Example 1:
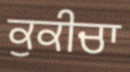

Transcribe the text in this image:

ਕੁਕੀਚਾ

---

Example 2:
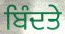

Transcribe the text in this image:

ਬਿੰਦਤੇ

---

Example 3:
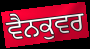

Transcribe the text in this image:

ਵੈਨਕੁਵਰ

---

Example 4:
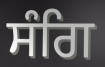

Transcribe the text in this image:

ਸੰਗਿ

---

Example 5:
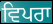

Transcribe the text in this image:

ਵਿਪਰਾ